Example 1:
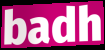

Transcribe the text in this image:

badh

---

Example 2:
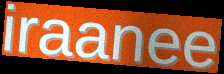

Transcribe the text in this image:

iraanee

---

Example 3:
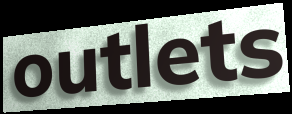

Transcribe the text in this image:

outlets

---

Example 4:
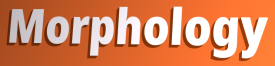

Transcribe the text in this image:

Morphology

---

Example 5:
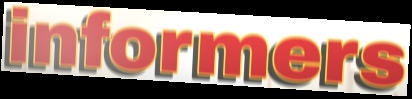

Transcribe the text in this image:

informers